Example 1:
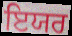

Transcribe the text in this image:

ਇਯਰ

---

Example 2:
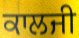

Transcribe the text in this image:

ਕਾਲਜੀ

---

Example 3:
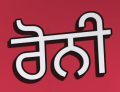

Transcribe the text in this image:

ਰੋਨੀ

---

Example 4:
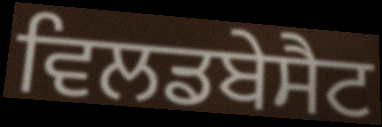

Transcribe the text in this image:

ਵਿਲਡਬੇਸੈਟ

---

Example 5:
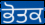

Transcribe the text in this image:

ਭੋਤਕ